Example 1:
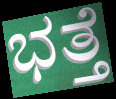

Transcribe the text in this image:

ಭತ್ತೆ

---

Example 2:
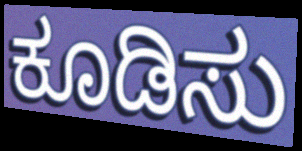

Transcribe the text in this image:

ಕೂಡಿಸು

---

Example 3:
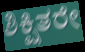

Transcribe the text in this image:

ಶಿಕ್ಷಿತರೇ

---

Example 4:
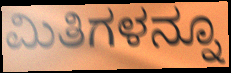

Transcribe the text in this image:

ಮಿತಿಗಳನ್ನೂ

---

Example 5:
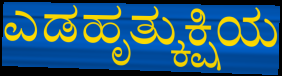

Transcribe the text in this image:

ಎಡಹೃತ್ಕುಕ್ಷಿಯ